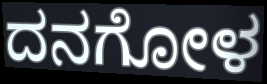
ದನಗೋಳ